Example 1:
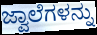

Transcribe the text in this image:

ಜ್ವಾಲೆಗಳನ್ನು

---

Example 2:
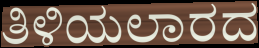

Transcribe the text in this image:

ತಿಳಿಯಲಾರದ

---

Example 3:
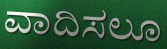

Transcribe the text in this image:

ವಾದಿಸಲೂ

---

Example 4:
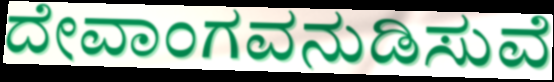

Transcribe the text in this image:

ದೇವಾಂಗವನುಡಿಸುವೆ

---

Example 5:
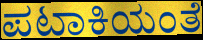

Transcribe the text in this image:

ಪಟಾಕಿಯಂತೆ